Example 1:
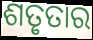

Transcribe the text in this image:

ଶତୃତାର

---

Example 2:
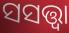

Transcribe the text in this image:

ସସତ୍ତ୍ୱା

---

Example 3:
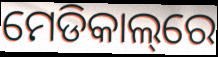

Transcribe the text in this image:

ମେଡିକାଲ୍‌ରେ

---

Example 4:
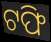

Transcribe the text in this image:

ଟଫି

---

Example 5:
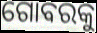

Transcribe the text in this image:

ଗୋବରକୁ